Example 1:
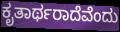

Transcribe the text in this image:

ಕೃತಾರ್ಥರಾದೆವೆಂದು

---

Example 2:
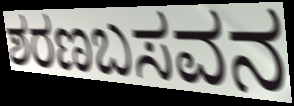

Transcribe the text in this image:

ಶರಣಬಸವನ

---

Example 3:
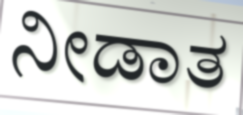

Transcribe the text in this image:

ನೀಡಾತ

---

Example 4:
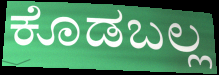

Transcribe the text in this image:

ಕೊಡಬಲ್ಲ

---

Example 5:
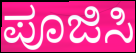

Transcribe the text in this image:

ಪೂಜಿಸಿ